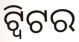
ଟ୍ୱିଟର